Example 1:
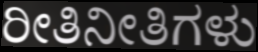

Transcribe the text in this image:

ರೀತಿನೀತಿಗಳು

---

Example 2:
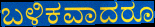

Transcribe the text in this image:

ಬಳಿಕವಾದರೂ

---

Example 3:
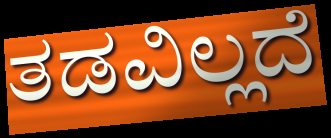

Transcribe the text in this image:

ತಡವಿಲ್ಲದೆ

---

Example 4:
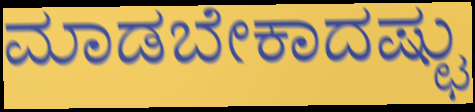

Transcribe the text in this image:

ಮಾಡಬೇಕಾದಷ್ಟು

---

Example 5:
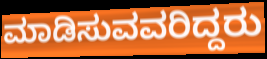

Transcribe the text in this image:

ಮಾಡಿಸುವವರಿದ್ದರು